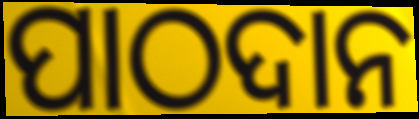
ପାଠଦାନ